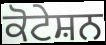
ਕੋਟੇਸ਼ਨ